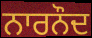
ਨਾਰਨੌਦ